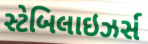
સ્ટેબિલાઇઝર્સ